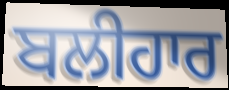
ਬਲੀਹਾਰ